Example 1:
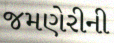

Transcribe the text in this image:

જમણેરીની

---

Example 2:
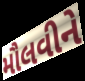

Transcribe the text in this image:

મૌલવીને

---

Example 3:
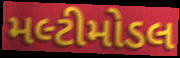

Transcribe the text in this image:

મલ્ટીમોડલ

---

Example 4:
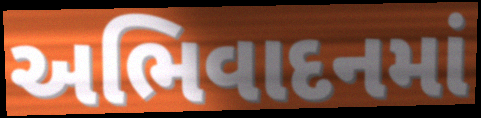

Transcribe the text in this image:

અભિવાદનમાં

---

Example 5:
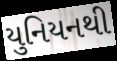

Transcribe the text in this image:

યુનિયનથી